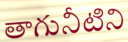
తాగునీటిని